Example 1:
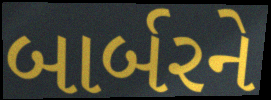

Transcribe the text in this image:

બાર્બરને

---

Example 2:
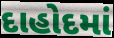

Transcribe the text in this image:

દાહોદમાં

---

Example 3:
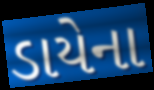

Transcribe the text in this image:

ડાયેના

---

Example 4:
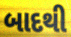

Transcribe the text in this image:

બાદથી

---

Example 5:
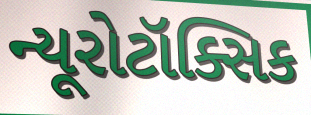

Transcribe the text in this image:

ન્યૂરોટૉક્સિક